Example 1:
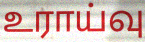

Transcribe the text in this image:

உராய்வு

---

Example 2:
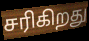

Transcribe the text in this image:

சரிகிறது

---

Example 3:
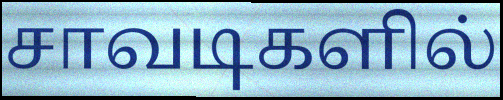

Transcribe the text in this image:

சாவடிகளில்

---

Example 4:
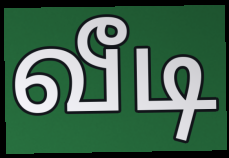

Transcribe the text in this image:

வீடி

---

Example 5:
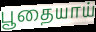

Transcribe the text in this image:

பூதையாய்